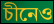
চীনেও